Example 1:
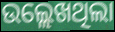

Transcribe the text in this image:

ଉଲ୍ଲେଖଥିଲା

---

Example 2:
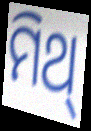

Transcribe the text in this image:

ମିଥ୍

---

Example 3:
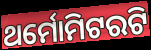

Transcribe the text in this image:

ଥର୍ମୋମିଟରଟି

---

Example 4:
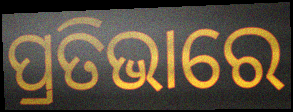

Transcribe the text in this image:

ପ୍ରତିଭାରେ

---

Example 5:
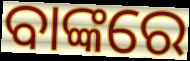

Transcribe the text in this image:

ବାଙ୍କରେ